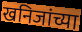
खनिजांच्या